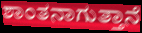
ಶಾಂತನಾಗುತ್ತಾನೆ